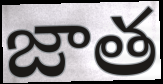
జాత